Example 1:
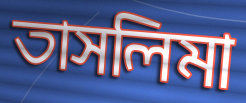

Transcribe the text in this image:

তাসলিমা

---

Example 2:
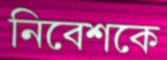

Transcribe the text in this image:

নিবেশকে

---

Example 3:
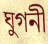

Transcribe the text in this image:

ঘুগনী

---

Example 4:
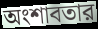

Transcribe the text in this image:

অংশাবতার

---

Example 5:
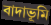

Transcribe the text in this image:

বাদাভূমি